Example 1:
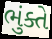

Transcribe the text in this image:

ભુંક્તે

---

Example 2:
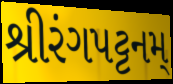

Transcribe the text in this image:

શ્રીરંગપટ્ટનમ્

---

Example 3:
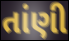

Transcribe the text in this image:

તાંણી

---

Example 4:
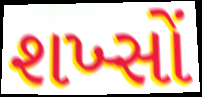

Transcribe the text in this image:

શખ્સોં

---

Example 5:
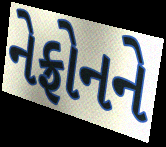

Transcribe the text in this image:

નેફ્રોનને